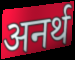
अनर्थ